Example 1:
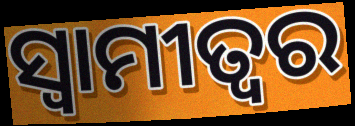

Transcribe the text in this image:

ସ୍ଵାମୀତ୍ୱର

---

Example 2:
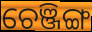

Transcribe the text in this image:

ଚେଞ୍ଜିଙ୍ଗ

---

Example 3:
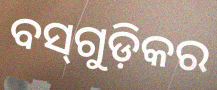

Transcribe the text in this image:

ବସ୍‌ଗୁଡ଼ିକର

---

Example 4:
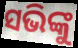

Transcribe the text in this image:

ସଭିଙ୍କୁ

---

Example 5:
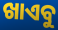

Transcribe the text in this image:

ଖାଏବୁ